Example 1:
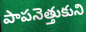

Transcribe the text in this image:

పాపనెత్తుకుని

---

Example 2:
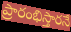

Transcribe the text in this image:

ప్రారంభిస్తారనే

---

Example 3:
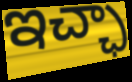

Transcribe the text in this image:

ఇచ్ఛా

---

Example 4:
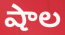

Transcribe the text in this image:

షాల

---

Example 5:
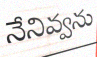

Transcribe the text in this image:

నేనివ్వను